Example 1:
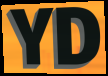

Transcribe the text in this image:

YD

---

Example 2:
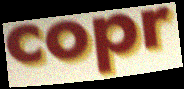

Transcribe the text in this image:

copr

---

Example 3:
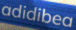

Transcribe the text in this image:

adidibea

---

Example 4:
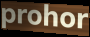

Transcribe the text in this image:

prohor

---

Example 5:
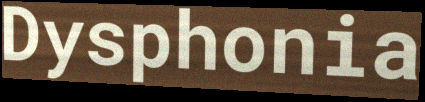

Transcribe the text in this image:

Dysphonia